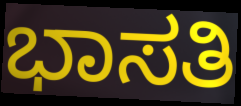
ಭಾಸತಿ